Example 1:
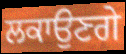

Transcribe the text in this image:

ਲਕਾਉਣਗੇ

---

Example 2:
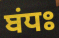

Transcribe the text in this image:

ਬਂਧਃ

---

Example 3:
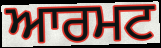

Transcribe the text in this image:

ਆਰਮਟ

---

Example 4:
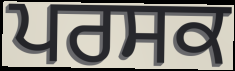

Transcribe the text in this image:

ਪਰਸਕ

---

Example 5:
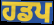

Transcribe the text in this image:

ਹਡਪ